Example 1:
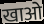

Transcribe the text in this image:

खाओ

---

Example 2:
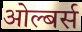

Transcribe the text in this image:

ओल्बर्स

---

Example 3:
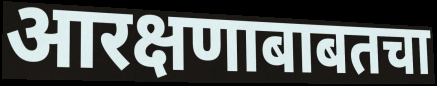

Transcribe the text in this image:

आरक्षणाबाबतचा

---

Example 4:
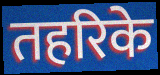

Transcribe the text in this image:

तहरिके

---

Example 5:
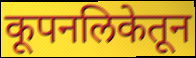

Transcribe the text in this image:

कूपनलिकेतून